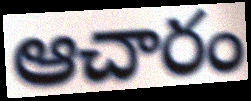
ఆచారం